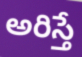
అరిస్తే